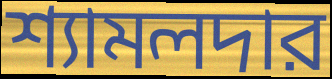
শ্যামলদার